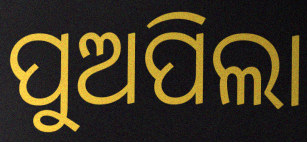
ପୁଅପିଲା